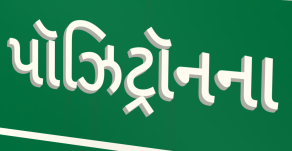
પૉઝિટ્રૉનના